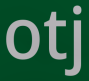
otj